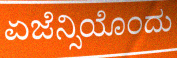
ಏಜೆನ್ಸಿಯೊಂದು